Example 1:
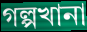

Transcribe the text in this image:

গল্পখানা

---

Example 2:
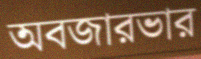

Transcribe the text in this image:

অবজারভার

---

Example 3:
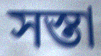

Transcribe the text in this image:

সস্তা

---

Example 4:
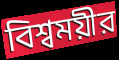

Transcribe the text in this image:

বিশ্বময়ীর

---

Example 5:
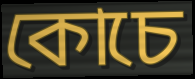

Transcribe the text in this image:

কোচে